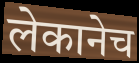
लेकानेच